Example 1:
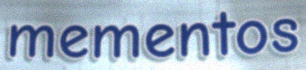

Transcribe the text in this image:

mementos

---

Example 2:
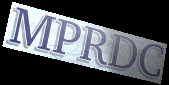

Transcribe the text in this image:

MPRDC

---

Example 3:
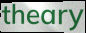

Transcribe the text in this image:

theary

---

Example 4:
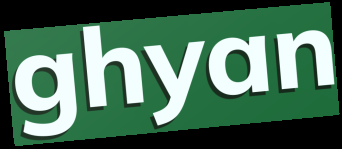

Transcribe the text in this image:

ghyan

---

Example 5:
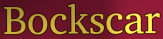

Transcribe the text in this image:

Bockscar